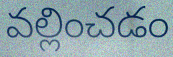
వల్లించడం